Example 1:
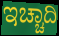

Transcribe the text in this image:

ಇಚ್ಚಾದಿ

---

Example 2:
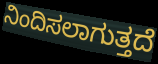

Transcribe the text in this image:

ನಿಂದಿಸಲಾಗುತ್ತದೆ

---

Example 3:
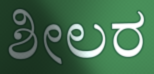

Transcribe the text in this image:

ಶೀಲರ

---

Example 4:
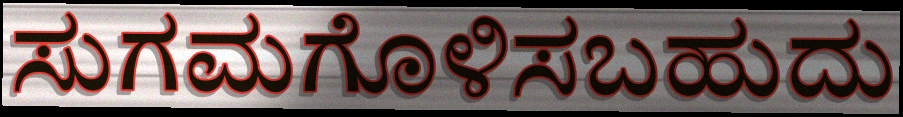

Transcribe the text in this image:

ಸುಗಮಗೊಳಿಸಬಹುದು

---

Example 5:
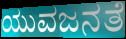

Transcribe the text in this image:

ಯುವಜನತೆ